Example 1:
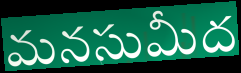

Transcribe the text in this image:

మనసుమీద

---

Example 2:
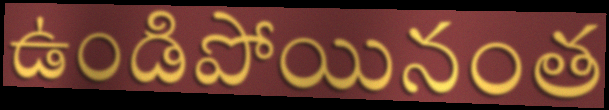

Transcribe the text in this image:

ఉండిపోయినంత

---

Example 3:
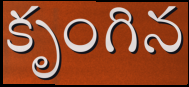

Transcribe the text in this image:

కృంగిన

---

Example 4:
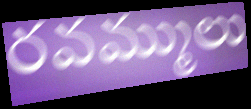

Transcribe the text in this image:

రవమ్ములు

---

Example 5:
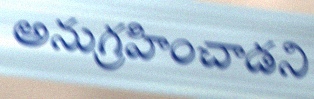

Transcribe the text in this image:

అనుగ్రహించాడని